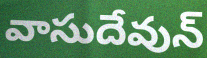
వాసుదేవున్